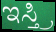
ಇಸ್ತ್ರಿ